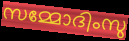
സമ്മോദിംസു